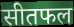
सीतफल